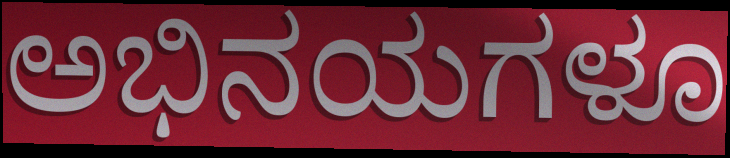
ಅಭಿನಯಗಳೂ